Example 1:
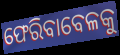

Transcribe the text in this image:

ଫେରିବାବେଳକୁ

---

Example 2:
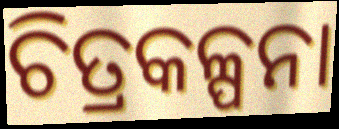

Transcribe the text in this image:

ଚିତ୍ରକଳ୍ପନା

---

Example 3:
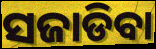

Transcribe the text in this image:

ସଜାଡିବା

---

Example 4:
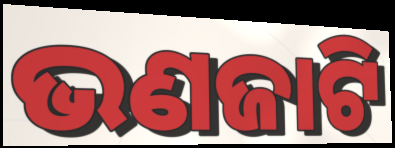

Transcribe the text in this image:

ଭଣଜାଟି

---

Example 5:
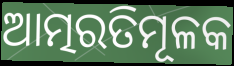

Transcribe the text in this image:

ଆତ୍ମରତିମୂଳକ